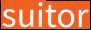
suitor